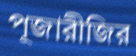
পূজারীজির